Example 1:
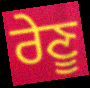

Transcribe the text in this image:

ਰੇਣੂ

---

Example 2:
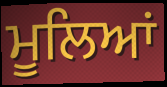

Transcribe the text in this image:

ਮੂਲਿਆਂ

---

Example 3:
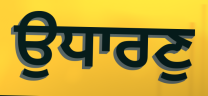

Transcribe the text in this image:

ਉਧਾਰਣੁ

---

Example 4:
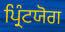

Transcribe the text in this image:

ਪ੍ਰਿੰਟਯੋਗ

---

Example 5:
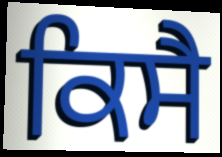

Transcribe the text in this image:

ਕਿਸੈ